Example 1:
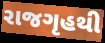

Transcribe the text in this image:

રાજગૃહથી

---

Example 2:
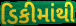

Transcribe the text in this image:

ડિકીમાંથી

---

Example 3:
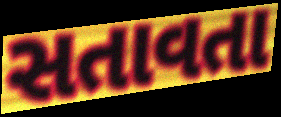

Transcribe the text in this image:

સતાવતા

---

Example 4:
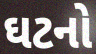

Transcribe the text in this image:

ઘટનો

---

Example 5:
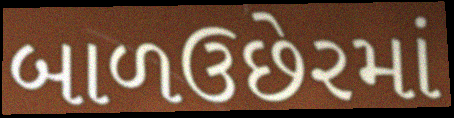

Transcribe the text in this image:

બાળઉછેરમાં